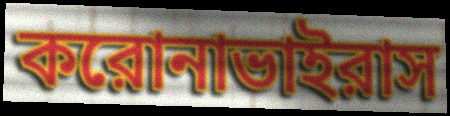
করোনাভাইরাস